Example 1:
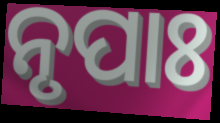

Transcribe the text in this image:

ନୃପାଃ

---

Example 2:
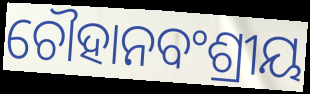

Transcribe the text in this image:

ଚୌହାନବଂଶ୍ରୀୟ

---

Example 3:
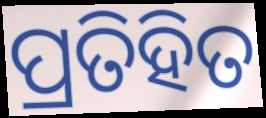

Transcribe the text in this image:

ପ୍ରତିହିତ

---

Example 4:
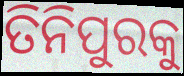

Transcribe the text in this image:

ତିନିପୁରକୁ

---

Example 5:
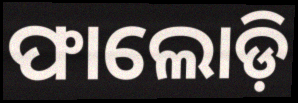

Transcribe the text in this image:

ଫାଲୋଡ଼ି